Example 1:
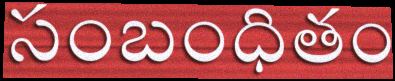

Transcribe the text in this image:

సంబంధితం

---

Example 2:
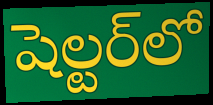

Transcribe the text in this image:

షెల్టర్‌లో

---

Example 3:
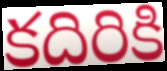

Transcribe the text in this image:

కదిరికి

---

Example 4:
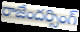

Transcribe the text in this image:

రాజేందర్సింగ్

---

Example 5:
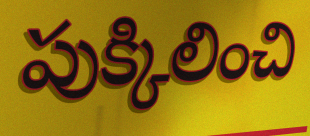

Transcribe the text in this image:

పుక్కిలించి